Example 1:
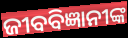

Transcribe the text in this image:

ଜୀବବିଜ୍ଞାନୀଙ୍କ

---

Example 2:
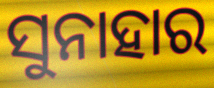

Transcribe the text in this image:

ସୁନାହାର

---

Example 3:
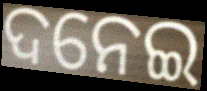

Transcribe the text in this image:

ଦନେଇ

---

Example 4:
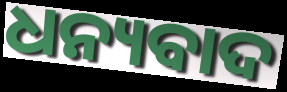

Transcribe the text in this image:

ଧନ୍ୟବାଦ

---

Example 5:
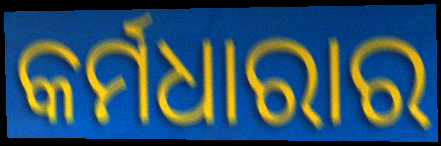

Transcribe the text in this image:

କର୍ମଧାରାର